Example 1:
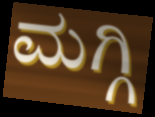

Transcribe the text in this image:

ಮಗ್ಗಿ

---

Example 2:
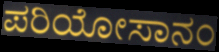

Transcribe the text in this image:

ಪರಿಯೋಸಾನಂ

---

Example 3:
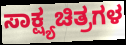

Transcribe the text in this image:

ಸಾಕ್ಷ್ಯಚಿತ್ರಗಳ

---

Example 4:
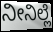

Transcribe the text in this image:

ನೀನಿಲ್ಲೆ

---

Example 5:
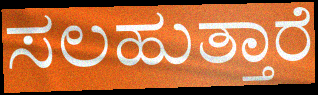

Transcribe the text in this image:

ಸಲಹುತ್ತಾರೆ